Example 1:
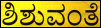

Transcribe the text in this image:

ಶಿಶುವಂತೆ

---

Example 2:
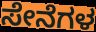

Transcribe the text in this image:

ಸೇನೆಗಳ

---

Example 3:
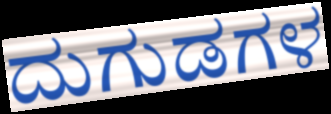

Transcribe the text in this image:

ದುಗುಡಗಳ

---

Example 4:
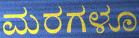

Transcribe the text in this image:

ಮರಗಳೂ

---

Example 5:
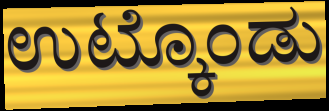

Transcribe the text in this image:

ಉಟ್ಕೊಂಡು